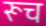
रूच